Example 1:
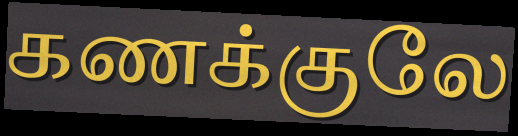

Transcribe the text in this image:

கணக்குலே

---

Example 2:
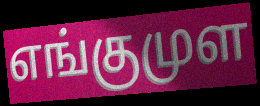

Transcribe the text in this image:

எங்குமுள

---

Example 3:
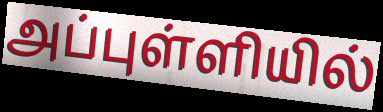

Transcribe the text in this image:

அப்புள்ளியில்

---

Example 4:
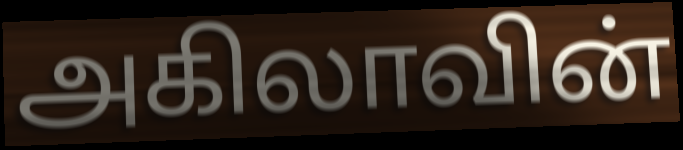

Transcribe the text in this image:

அகிலாவின்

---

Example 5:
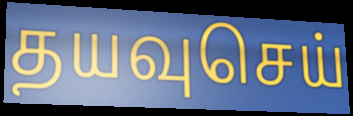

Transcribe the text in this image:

தயவுசெய்